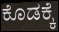
ಕೊಡಕ್ಕೆ